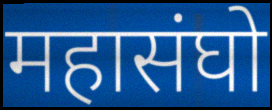
महासंघो